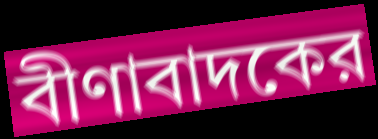
বীণাবাদকের